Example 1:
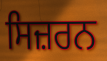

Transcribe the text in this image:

ਸਿਜ਼ਰਨ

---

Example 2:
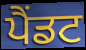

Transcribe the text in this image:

ਪੈਂਡਟ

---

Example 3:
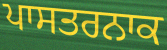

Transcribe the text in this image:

ਪਾਸਤਰਨਾਕ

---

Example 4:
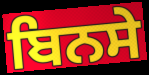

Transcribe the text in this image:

ਬਿਨਸੇ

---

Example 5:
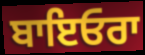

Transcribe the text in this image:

ਬਾਇਓਰਾ